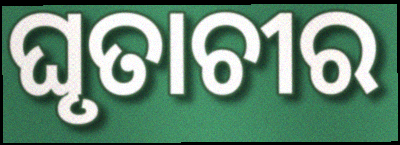
ଘୃତାଚୀର